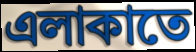
এলাকাতে